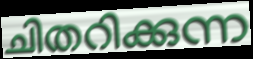
ചിതറിക്കുന്ന